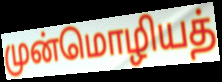
முன்மொழியத்